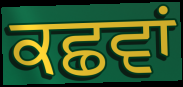
ਕਛਵਾਂ